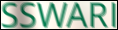
SSWARI